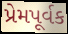
પ્રેમપૂર્વક